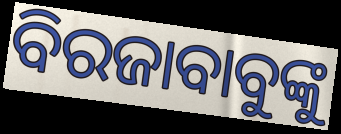
ବିରଜାବାବୁଙ୍କୁ